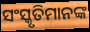
ସଂସ୍କୃତିମାନଙ୍କ